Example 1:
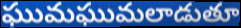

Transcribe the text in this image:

ఘుమఘుమలాడుతూ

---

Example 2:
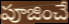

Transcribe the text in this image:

పూజించే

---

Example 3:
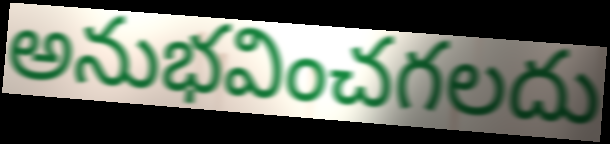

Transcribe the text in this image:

అనుభవించగలదు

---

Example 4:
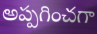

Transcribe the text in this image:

అప్పగించగా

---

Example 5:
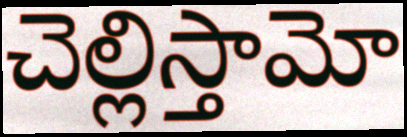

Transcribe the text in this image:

చెల్లిస్తామో